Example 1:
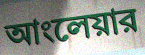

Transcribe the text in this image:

আংলেয়ার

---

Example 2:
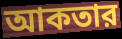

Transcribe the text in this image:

আকতার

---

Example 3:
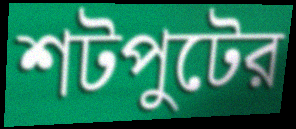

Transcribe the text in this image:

শটপুটের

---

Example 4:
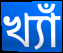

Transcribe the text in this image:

খ্যাঁ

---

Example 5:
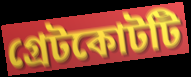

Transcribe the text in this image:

গ্রেটকোটটি